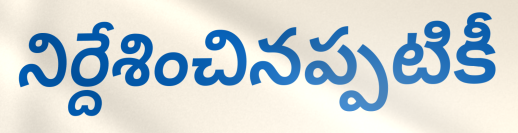
నిర్దేశించినప్పటికీ